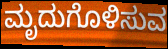
ಮೃದುಗೊಳಿಸುವ